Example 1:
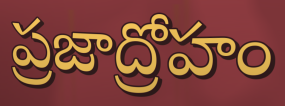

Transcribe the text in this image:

ప్రజాద్రోహం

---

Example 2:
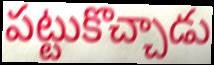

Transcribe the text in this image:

పట్టుకొచ్చాడు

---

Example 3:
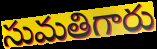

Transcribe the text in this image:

సుమతిగారు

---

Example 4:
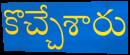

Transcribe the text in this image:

కొచ్చేశారు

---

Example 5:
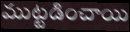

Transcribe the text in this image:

ముట్టడించాయి